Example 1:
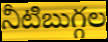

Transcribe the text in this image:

నీటిబుగ్గల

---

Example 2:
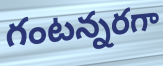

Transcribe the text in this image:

గంటన్నరగా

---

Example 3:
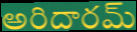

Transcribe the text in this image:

అరిదారమ్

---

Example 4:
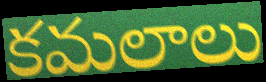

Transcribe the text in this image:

కమలాలు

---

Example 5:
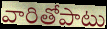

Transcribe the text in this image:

వారితోపాటు